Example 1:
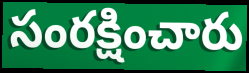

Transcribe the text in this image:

సంరక్షించారు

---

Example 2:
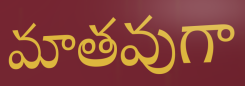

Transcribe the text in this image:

మాతవుగా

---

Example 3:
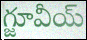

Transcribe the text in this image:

గ్జూవీయ్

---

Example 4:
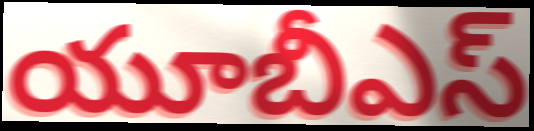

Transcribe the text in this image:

యూబీఎస్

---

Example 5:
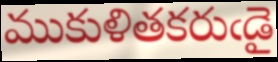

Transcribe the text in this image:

ముకుళితకరుఁడై